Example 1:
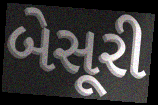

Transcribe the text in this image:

બેસૂરી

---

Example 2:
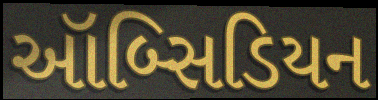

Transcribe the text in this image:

ઑબ્સિડિયન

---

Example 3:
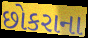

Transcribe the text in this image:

છોકરાના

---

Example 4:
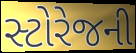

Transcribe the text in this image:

સ્ટોરેજની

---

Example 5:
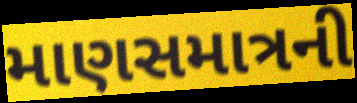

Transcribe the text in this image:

માણસમાત્રની